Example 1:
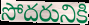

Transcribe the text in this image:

సోదరునికి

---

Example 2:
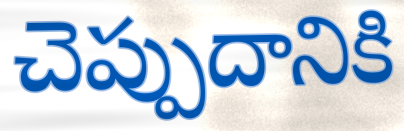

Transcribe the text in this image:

చెప్పుదానికి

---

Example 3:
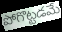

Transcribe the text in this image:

పోగొట్టడమే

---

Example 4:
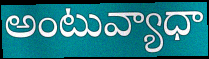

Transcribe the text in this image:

అంటువ్యాధా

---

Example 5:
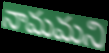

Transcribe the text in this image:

నామమని